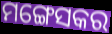
ମଙ୍ଗେସକର